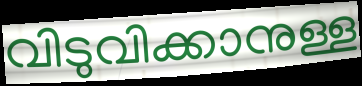
വിടുവിക്കാനുള്ള